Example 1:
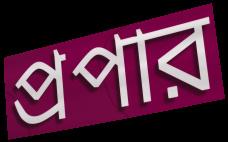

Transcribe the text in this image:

প্রপার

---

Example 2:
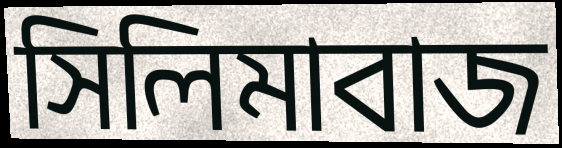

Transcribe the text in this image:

সিলিমাবাজ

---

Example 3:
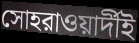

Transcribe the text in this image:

সোহরাওয়ার্দীই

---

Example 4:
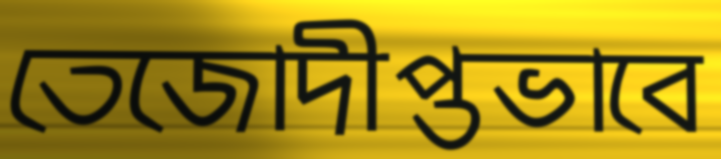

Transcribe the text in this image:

তেজোদীপ্তভাবে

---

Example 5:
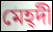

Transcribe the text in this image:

মেহ্দী